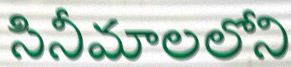
సినీమాలలోని